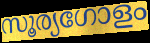
സൂര്യഗോളം